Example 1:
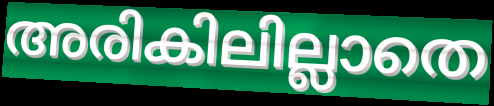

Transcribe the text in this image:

അരികിലില്ലാതെ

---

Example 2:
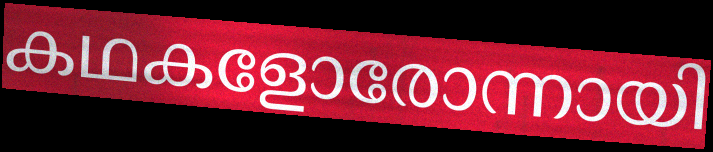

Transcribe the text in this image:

കഥകളോരോന്നായി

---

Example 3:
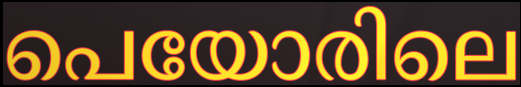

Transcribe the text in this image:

പെയോരിലെ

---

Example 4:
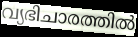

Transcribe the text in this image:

വ്യഭിചാരത്തിൽ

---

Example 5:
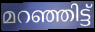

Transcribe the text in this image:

മറഞ്ഞിട്ട്